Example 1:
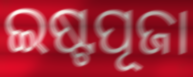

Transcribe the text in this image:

ଇଷ୍ଟପୂଜା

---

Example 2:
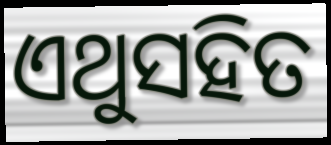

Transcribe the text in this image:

ଏଥୁସହିତ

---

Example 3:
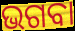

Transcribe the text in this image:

ଭଗବା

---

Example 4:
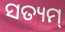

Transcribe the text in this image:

ସତ୍ୟମ୍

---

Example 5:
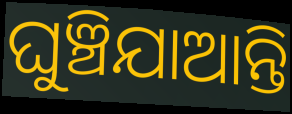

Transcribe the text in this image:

ଘୁଞ୍ଚିଯାଆନ୍ତି